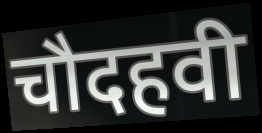
चौदहवी